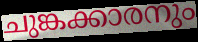
ചുങ്കക്കാരനും